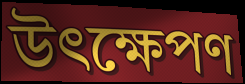
উৎক্ষেপণ